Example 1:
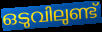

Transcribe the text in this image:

ഒടുവിലുണ്ട്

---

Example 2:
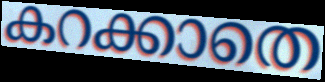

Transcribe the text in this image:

കറക്കാതെ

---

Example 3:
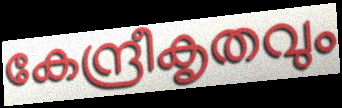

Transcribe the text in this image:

കേന്ദ്രീകൃതവും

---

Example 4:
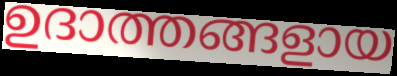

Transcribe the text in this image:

ഉദാത്തങ്ങളായ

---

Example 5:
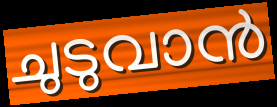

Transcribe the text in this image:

ചുടുവാൻ